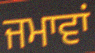
ਜਮਾਵਾਂ